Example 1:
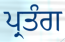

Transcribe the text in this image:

ਪ੍ਰਤੰਗ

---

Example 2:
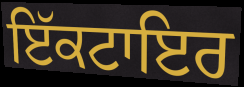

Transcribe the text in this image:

ਇੱਕਟਾਇਰ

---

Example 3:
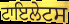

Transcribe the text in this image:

ਟਾਇਲੇਟਸ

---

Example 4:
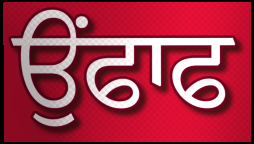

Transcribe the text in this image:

ਉੰਫਾਫ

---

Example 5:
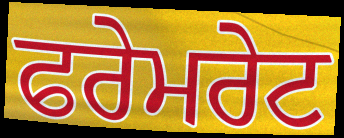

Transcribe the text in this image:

ਫਰੇਮਰੇਟ